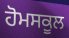
ਹੋਮਸਕੂਲ